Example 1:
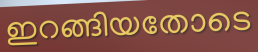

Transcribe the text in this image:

ഇറങ്ങിയതോടെ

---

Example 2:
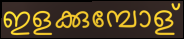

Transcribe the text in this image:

ഇളക്കുമ്പോള്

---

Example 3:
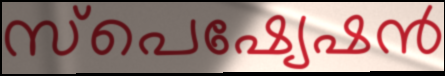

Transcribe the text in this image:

സ്പെഷ്യേഷൻ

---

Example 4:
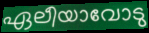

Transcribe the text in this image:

ഏലീയാവോടു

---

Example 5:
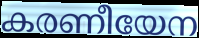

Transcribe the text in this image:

കരണീയേന